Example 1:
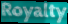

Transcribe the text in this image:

Royalty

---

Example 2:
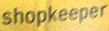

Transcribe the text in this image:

shopkeeper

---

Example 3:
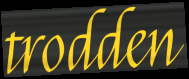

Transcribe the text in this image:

trodden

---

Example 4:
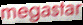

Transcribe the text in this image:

megastar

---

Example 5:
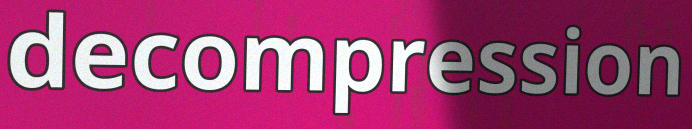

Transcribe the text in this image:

decompression